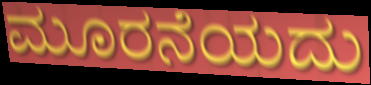
ಮೂರನೆಯದು